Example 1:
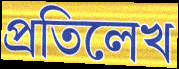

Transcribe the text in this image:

প্রতিলেখ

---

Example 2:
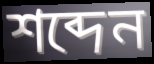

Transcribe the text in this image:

শব্দেন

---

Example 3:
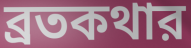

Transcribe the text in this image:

ব্রতকথার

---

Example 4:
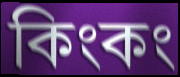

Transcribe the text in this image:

কিংকং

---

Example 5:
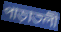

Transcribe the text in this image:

পাড়াতলী